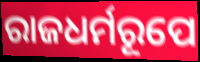
ରାଜଧର୍ମରୂପେ